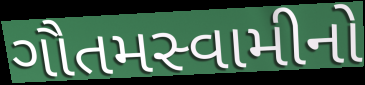
ગૌતમસ્વામીનો